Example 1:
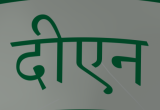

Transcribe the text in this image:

दीएन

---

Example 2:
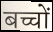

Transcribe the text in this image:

बच्‍चों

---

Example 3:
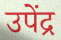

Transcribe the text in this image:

उपेंद्र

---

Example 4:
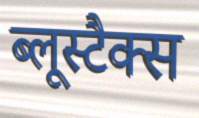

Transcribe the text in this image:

ब्लूस्टैक्स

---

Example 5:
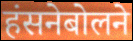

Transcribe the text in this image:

हंसनेबोलने